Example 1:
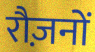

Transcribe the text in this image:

रौज़नों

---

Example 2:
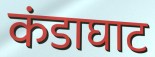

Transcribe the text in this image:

कंडाघाट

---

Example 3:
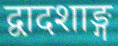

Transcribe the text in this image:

द्वादशाङ्ग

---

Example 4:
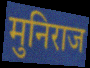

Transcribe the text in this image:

मुनिराज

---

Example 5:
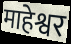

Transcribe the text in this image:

माहेश्वर